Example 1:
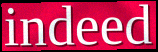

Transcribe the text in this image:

indeed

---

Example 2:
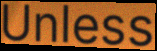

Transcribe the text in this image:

Unless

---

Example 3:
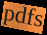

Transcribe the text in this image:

pdfs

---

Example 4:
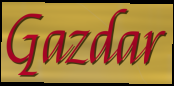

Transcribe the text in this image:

Gazdar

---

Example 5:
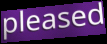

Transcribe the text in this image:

pleased